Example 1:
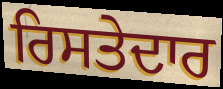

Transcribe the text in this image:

ਰਿਸਤੇਦਾਰ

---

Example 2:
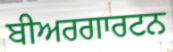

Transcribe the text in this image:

ਬੀਅਰਗਾਰਟਨ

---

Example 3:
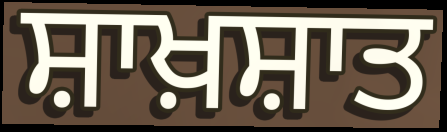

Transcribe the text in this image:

ਸ਼ਾਖ਼ਸ਼ਾਤ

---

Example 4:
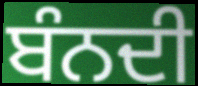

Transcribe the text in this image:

ਬੰਨਦੀ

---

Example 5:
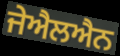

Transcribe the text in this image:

ਜੇਐਲਐਨ